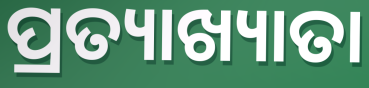
ପ୍ରତ୍ୟାଖ୍ୟାତା